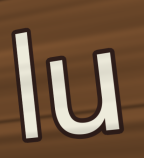
lu